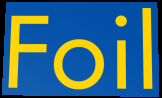
Foil